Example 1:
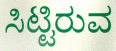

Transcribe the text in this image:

ಸಿಟ್ಟಿರುವ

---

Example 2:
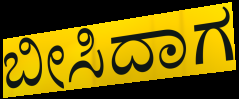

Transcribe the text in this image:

ಬೀಸಿದಾಗ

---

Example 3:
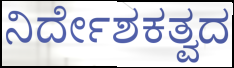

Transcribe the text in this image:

ನಿರ್ದೇಶಕತ್ವದ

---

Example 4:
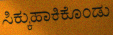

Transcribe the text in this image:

ಸಿಕ್ಕುಹಾಕಿಕೊಂಡು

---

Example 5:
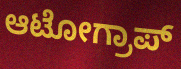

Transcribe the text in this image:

ಆಟೋಗ್ರಾಪ್